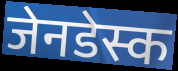
जेनडेस्क